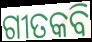
ଗୀତକବି